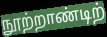
நூற்றாண்டிற்